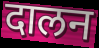
दालन